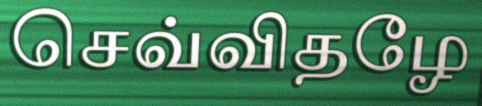
செவ்விதழே